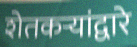
शेतकऱ्यांद्वारे